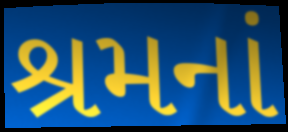
શ્રમનાં